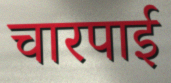
चारपाई